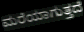
ಮರೆಯಾಗುತ್ತದೆ